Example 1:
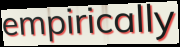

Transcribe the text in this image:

empirically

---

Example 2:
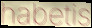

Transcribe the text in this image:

habetis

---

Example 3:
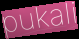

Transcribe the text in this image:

pukali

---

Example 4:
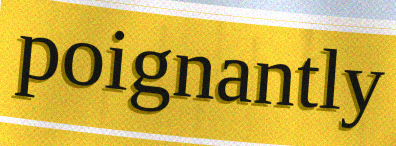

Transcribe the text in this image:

poignantly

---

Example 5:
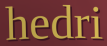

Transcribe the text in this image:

hedri